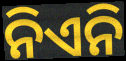
ନିଏନି